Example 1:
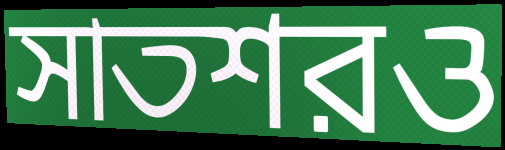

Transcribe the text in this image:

সাতশরও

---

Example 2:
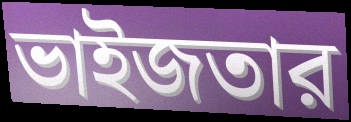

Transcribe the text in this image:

ভাইজতার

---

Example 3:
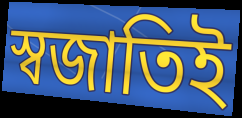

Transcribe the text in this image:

স্বজাতিই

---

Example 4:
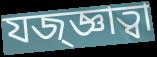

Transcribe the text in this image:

যজ্জ্ঞাত্বা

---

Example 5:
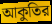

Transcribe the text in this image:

আকুতির